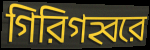
গিরিগহ্বরে